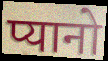
प्यानो